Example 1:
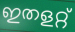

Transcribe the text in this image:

ഇതളറ്റ്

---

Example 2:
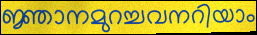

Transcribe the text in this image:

ജ്ഞാനമുറച്ചവനറിയാം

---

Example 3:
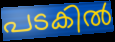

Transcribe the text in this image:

പടകിൽ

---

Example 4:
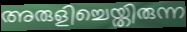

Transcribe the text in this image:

അരുളിച്ചെയ്തിരുന്ന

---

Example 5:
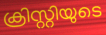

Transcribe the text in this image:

ക്രിസ്റ്റിയുടെ